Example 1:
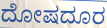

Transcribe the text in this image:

ದೋಷದೂರ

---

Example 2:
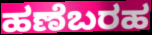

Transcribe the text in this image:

ಹಣೆಬರಹ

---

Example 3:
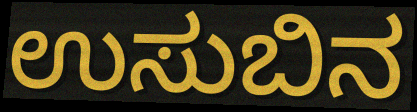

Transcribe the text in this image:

ಉಸುಬಿನ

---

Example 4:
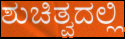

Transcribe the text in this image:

ಶುಚಿತ್ವದಲ್ಲಿ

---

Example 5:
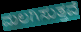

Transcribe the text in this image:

ಮಲಗಿಸುತ್ತವೆ